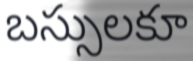
బస్సులకూ